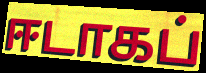
ஈடாகப்